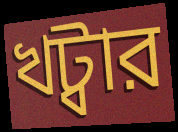
খট্বার